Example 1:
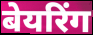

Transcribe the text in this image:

बेयरिंग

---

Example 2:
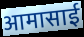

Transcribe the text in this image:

आमासाई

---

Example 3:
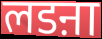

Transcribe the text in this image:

लडऩा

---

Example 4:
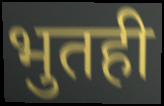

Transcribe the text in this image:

भुतही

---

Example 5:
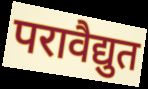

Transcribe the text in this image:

परावैद्युत